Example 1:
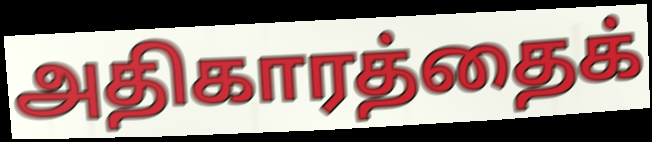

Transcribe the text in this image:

அதிகாரத்தைக்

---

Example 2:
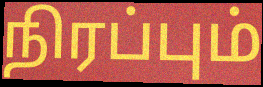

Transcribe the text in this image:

நிரப்பும்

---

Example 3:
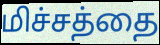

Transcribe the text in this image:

மிச்சத்தை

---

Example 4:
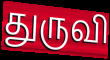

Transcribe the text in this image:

துருவி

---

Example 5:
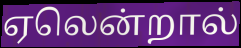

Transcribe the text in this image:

ஏலென்றால்